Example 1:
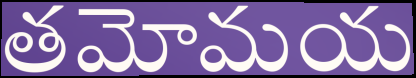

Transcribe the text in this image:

తమోమయ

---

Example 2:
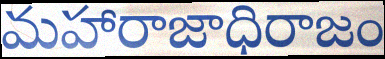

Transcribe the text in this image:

మహారాజాధిరాజం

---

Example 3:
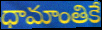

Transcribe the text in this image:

ధామాంతికే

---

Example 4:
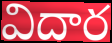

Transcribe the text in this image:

విదార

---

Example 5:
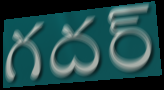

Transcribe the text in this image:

గదర్